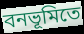
বনভূমিতে